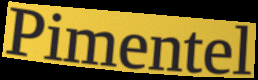
Pimentel